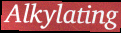
Alkylating